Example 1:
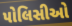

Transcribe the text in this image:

પોલિસીઓ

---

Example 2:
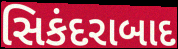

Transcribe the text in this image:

સિકંદરાબાદ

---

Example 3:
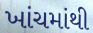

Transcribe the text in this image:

ખાંચમાંથી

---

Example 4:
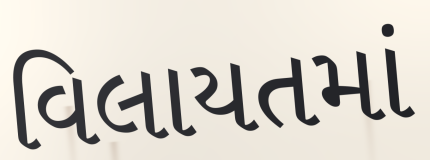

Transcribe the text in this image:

વિલાયતમાં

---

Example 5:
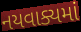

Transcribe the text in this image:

નયવાક્યમાં